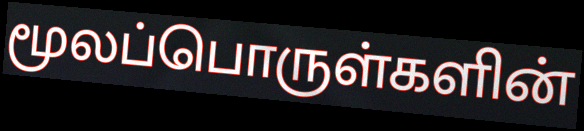
மூலப்பொருள்களின்